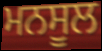
ਮਨਸੂਲ